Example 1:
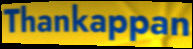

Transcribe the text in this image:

Thankappan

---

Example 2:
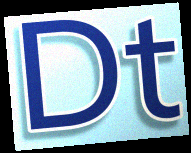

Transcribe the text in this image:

Dt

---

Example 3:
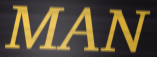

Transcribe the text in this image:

MAN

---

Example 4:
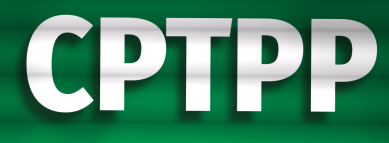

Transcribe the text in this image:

CPTPP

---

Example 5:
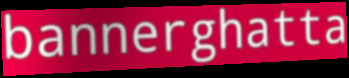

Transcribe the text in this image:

bannerghatta